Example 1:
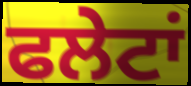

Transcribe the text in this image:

ਫਲੇਟਾਂ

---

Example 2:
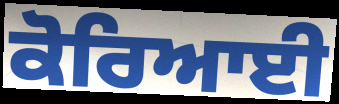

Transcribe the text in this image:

ਕੋਰਿਆਈ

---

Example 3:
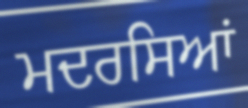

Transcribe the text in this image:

ਮਦਰਸਿਆਂ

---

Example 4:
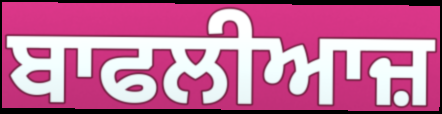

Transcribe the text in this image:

ਬਾਫਲੀਆਜ਼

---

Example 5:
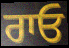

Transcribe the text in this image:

ਰਾਓ